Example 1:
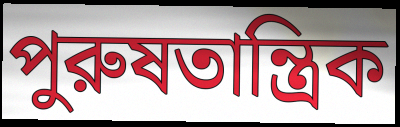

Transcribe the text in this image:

পুরুষতান্ত্রিক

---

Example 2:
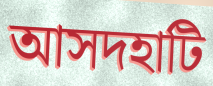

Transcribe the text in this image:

আসদহাটি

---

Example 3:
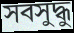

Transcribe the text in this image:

সবসুদ্ধু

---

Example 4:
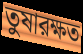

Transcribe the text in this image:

তুষারক্ষত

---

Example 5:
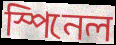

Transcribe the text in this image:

স্পিনেল